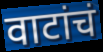
वाटांचं